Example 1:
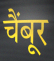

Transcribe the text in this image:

चैंबूर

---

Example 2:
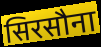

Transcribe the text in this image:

सिरसौना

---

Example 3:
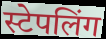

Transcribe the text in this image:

स्टेपलिंग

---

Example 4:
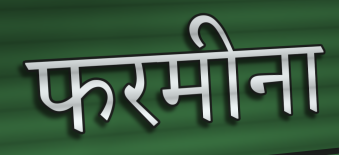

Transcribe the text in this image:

फरमीना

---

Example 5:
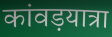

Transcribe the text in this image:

कांवड़यात्रा